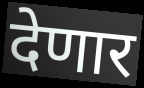
देणार